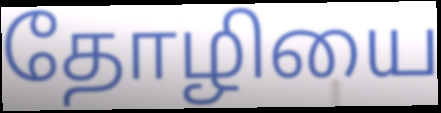
தோழியை